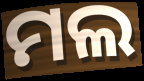
ମଲ